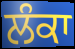
ਲੰਕਾ